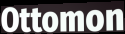
Ottomon